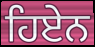
ਹਿਏਨ